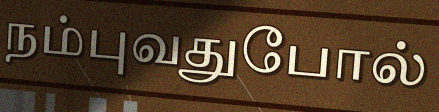
நம்புவதுபோல்